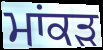
ਮਾਂਕੜ